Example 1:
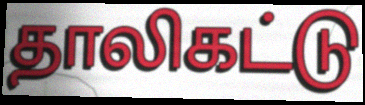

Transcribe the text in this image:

தாலிகட்டு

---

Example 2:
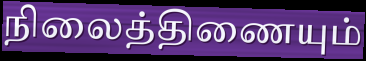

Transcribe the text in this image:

நிலைத்திணையும்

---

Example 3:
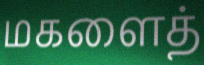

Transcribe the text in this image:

மகளைத்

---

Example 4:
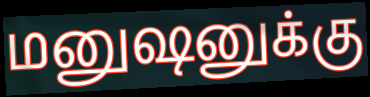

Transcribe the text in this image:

மனுஷனுக்கு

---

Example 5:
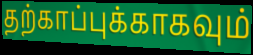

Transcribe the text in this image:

தற்காப்புக்காகவும்